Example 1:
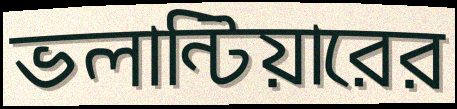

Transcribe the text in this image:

ভলান্টিয়ারের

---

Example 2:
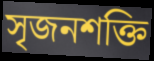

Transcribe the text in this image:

সৃজনশক্তি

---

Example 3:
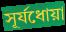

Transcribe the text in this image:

সূর্যধোয়া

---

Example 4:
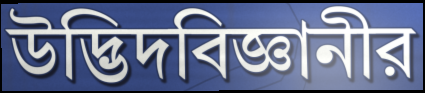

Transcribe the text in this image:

উদ্ভিদবিজ্ঞানীর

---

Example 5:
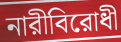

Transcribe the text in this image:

নারীবিরোধী